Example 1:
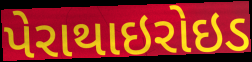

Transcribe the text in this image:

પેરાથાઇરોઇડ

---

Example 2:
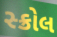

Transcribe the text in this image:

સ્ક્રોલ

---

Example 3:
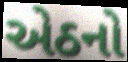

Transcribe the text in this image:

એઠનો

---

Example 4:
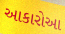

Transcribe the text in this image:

આકારોઆ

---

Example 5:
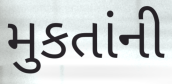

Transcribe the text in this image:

મુકતાંની